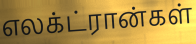
எலக்ட்ரான்கள்